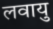
लवायु